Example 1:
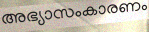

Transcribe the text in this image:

അഭ്യാസംകാരണം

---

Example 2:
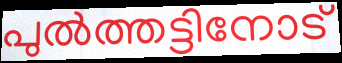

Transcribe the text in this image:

പുൽത്തട്ടിനോട്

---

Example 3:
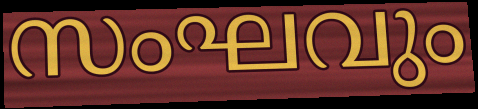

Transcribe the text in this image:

സംഘവും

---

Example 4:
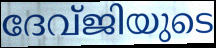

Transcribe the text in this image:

ദേവ്ജിയുടെ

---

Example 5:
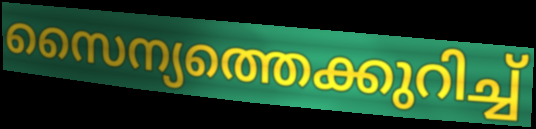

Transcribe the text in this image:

സൈന്യത്തെക്കുറിച്ച്